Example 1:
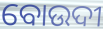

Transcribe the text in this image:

ବୋଉଦୀ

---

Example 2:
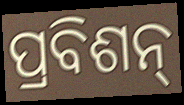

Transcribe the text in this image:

ପ୍ରବିଶନ୍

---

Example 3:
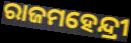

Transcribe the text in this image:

ରାଜମହେନ୍ଦ୍ରୀ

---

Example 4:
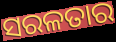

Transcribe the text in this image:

ସରଳତାର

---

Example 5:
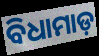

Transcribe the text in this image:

ବିଧାମାଡ଼